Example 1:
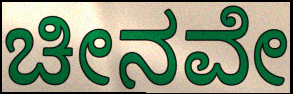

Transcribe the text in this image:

ಚೀನವೇ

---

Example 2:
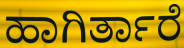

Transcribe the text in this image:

ಹಾಗಿರ್ತಾರೆ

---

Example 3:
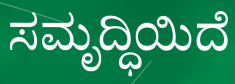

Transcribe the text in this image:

ಸಮೃದ್ಧಿಯಿದೆ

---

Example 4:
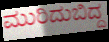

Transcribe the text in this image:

ಮುರಿದುಬಿದ್ದ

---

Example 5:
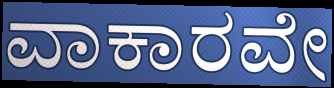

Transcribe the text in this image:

ವಾಕಾರವೇ